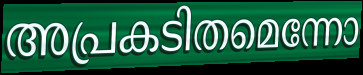
അപ്രകടിതമെന്നോ